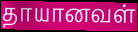
தாயானவள்